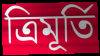
ত্ৰিমূৰ্তি